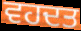
ਵਹਦਤ